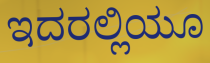
ಇದರಲ್ಲಿಯೂ